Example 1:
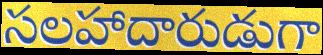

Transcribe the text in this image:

సలహాదారుడుగా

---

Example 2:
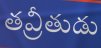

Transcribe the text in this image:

తవ్రీతుడు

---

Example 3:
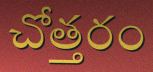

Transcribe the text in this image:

చోత్తరం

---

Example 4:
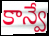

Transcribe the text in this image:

కాన్వే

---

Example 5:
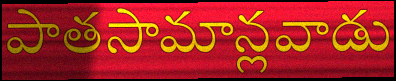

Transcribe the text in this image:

పాతసామాన్లవాడు